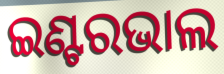
ଇଣ୍ଟରଭାଲ